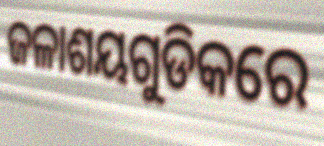
ଜଳାଶୟଗୁଡିକରେ